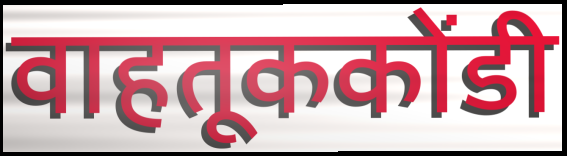
वाहतूककोंडी